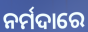
ନର୍ମଦାରେ